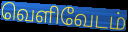
வெளிவேடம்